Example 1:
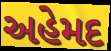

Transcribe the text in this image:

અહેમદ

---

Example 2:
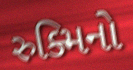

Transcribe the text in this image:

રુક્મિનો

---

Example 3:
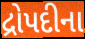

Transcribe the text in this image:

દ્રોપદીના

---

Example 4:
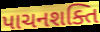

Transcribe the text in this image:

પાચનશક્તિ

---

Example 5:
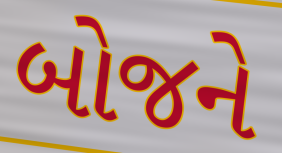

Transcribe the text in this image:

બોજને